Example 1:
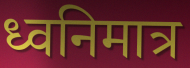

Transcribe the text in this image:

ध्वनिमात्र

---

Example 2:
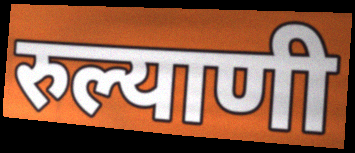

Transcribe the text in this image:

रुल्याणी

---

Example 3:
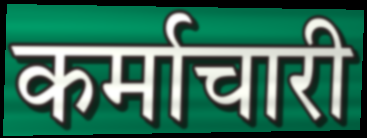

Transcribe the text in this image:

कर्माचारी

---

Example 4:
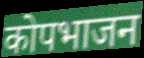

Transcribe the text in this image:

कोपभाजन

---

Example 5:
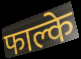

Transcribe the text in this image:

फाल्के